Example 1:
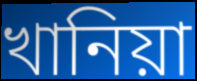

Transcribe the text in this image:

খানিয়া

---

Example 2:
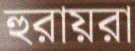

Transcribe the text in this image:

হুরায়রা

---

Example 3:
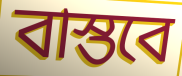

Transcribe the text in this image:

বাস্তবে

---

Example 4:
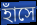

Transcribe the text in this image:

হাঁসে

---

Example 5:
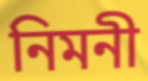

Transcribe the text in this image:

নিমনী